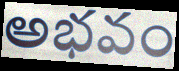
అభవం